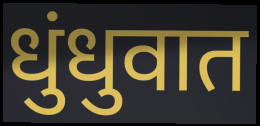
धुंधुवात